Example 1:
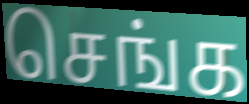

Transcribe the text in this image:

செங்க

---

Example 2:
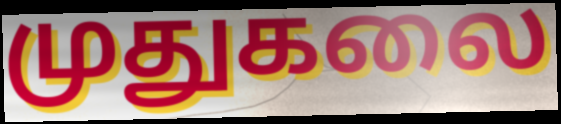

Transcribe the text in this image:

முதுகலை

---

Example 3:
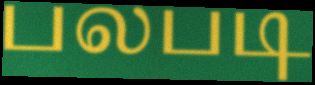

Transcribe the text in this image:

பலபடி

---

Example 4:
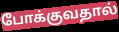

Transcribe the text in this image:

போக்குவதால்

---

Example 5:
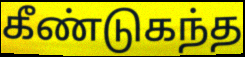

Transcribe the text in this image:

கீண்டுகந்த